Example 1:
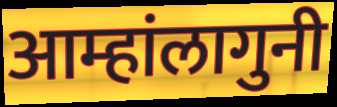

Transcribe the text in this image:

आम्हांलागुनी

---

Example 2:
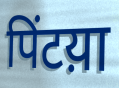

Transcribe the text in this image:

पिंटय़ा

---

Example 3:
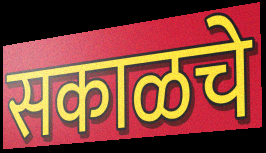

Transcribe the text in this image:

सकाळचे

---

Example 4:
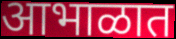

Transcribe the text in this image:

आभाळात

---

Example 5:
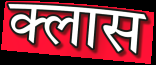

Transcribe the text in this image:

क्लास